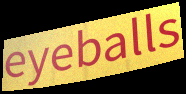
eyeballs